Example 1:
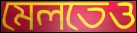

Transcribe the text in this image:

মেলতেও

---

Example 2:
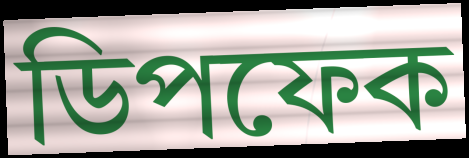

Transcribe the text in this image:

ডিপফেক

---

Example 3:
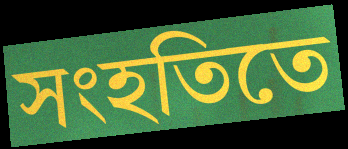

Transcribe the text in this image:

সংহতিতে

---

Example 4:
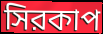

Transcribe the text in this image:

সিরকাপ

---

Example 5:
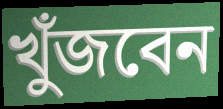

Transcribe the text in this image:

খুঁজবেন